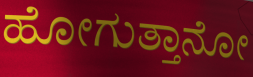
ಹೋಗುತ್ತಾನೋ